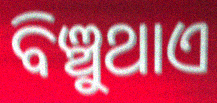
ବିଞ୍ଚୁଥାଏ